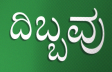
ದಿಬ್ಬವು